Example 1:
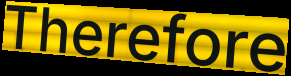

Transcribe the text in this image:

Therefore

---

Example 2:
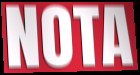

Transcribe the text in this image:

NOTA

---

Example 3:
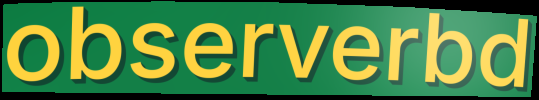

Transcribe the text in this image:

observerbd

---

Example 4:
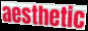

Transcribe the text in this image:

aesthetic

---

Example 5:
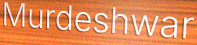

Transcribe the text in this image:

Murdeshwar